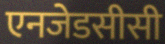
एनजेडसीसी